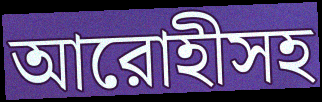
আরোহীসহ